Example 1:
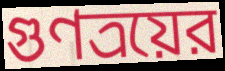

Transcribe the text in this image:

গুণত্রয়ের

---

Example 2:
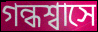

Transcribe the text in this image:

গন্ধশ্বাসে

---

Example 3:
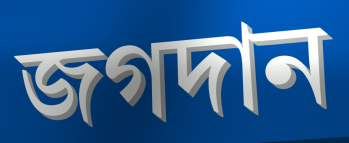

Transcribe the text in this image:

জগদান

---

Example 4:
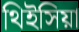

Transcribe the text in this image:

থিইসিয়া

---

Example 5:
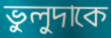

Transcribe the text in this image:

ভুলুদাকে